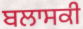
ਬਲਾਸਕੀ